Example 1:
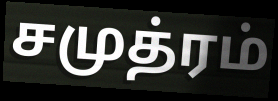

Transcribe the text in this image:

சமுத்ரம்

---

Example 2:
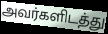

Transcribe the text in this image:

அவர்களிடத்து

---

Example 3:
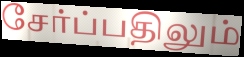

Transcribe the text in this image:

சேர்ப்பதிலும்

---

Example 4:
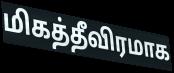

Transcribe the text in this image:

மிகத்தீவிரமாக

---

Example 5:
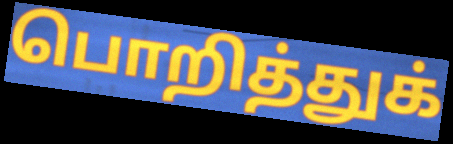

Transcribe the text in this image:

பொறித்துக்